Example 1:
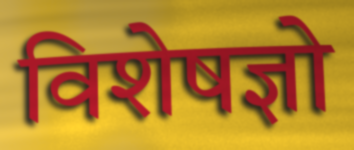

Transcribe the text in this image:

विशेषज्ञो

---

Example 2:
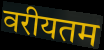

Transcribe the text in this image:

वरीयतम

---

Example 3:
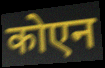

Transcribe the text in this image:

कोएन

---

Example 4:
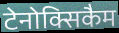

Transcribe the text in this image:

टेनोक्सिकैम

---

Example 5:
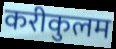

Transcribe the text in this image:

करीकुलम